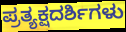
ಪ್ರತ್ಯಕ್ಷದರ್ಶಿಗಳು